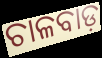
ଚାଳବାଡ଼